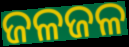
ଜଳଜଳ